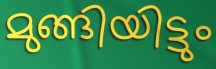
മുങ്ങിയിട്ടും